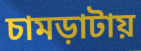
চামড়াটায়